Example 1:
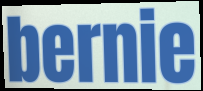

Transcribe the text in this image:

bernie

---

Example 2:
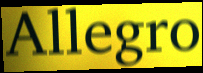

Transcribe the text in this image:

Allegro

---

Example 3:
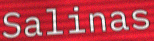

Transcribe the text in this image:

Salinas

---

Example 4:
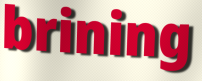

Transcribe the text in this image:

brining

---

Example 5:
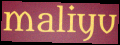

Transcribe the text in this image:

maliyu